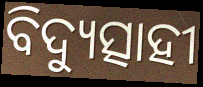
ବିଦ୍ୟୁତ୍ସାହୀ